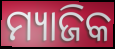
ମ୍ୟାଜିକ